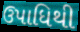
ઉપાધિથી